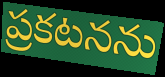
ప్రకటనను